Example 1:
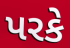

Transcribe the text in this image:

પરકે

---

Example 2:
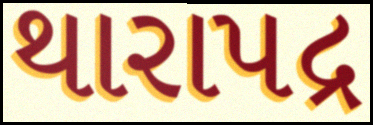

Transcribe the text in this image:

થારાપદ્ર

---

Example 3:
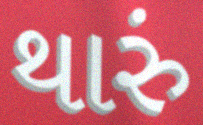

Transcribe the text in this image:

થારું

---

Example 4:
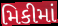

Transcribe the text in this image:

મિકીમાં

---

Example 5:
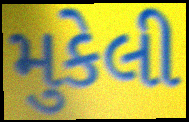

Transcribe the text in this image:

મુકેલી